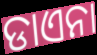
ଡାଏନା